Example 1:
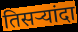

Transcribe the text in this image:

तिसऱ्यांदा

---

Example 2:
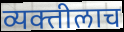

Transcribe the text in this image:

व्यक्तीलाच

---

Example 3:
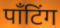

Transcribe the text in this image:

पाँटिंग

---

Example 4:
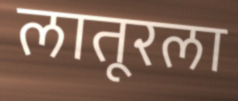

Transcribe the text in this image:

लातूरला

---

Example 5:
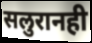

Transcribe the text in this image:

सलुरानही